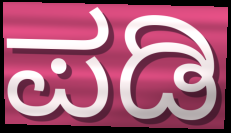
ಪಡಿ